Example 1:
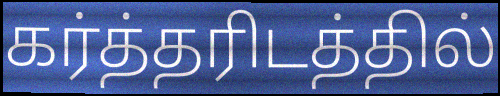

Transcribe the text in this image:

கர்த்தரிடத்தில்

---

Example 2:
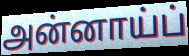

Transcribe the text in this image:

அன்னாய்ப்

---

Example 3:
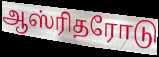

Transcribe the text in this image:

ஆஸ்ரிதரோடு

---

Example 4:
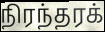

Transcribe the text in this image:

நிரந்தரக்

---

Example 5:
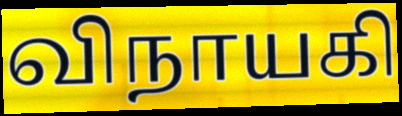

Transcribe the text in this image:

விநாயகி